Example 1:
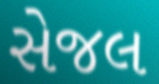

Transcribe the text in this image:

સેજલ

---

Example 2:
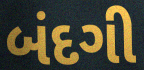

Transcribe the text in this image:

બંદગી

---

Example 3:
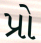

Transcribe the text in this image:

પ્રો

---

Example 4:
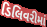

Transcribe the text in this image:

ડિલિવરીમાં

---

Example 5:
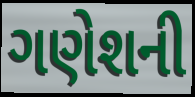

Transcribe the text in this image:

ગણેશની